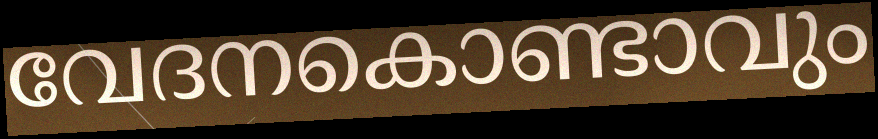
വേദനകൊണ്ടാവും